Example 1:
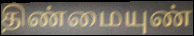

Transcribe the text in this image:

திண்மையுண்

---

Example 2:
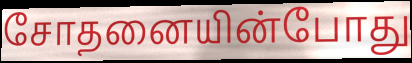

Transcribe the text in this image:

சோதனையின்போது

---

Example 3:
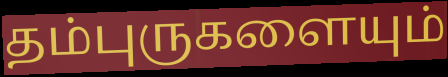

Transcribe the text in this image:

தம்புருகளையும்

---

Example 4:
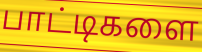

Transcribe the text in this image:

பாட்டிகளை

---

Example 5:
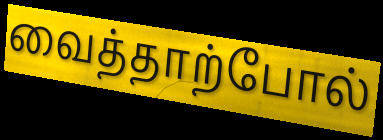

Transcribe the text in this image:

வைத்தாற்போல்